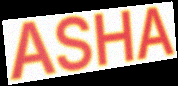
ASHA